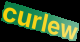
curlew